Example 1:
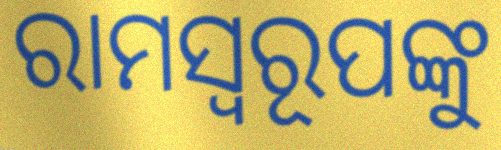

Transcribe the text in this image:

ରାମସ୍ୱରୂପଙ୍କୁ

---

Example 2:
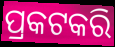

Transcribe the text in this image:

ପ୍ରକଟକରି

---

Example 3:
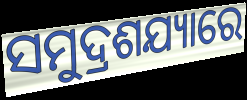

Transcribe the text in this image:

ସମୁଦ୍ରଶଯ୍ୟାରେ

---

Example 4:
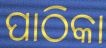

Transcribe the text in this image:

ପାଠିକା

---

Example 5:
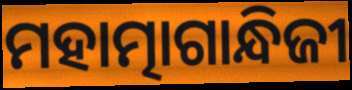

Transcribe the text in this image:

ମହାତ୍ମାଗାନ୍ଧିଜୀ